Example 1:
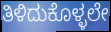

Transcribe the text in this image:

ತಿಳಿದುಕೊಳ್ಳಲೇ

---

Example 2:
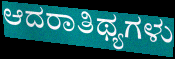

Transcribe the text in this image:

ಆದರಾತಿಥ್ಯಗಳು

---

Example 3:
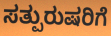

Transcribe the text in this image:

ಸತ್ಪುರುಷರಿಗೆ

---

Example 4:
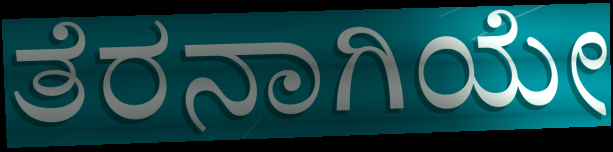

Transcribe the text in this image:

ತೆರನಾಗಿಯೇ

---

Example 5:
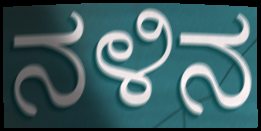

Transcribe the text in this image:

ನಳಿನ